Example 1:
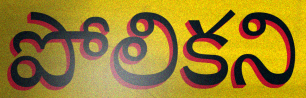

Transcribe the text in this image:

పోలికని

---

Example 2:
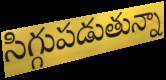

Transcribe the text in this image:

సిగ్గుపడుతున్నా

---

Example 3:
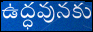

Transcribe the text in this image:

ఉద్ధవునకు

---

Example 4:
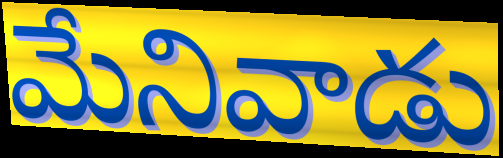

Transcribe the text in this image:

మేనివాడు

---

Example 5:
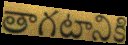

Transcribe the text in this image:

తాగటానికి